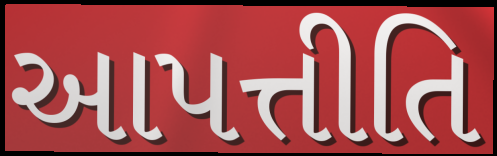
આપત્તીતિ